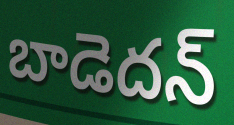
బాడెదన్